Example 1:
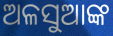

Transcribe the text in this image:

ଅଳସୁଆଙ୍କ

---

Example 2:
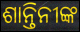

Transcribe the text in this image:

ଶାନ୍ତିନୀଙ୍କ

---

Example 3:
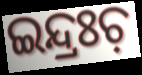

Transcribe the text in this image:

ଇନ୍ଦ୍ରଃଚ଼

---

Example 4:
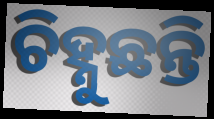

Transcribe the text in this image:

ଚିହ୍ନୁଛନ୍ତି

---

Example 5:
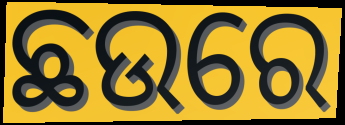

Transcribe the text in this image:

ଛଉରେ